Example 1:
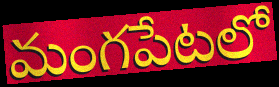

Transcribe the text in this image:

మంగపేటలో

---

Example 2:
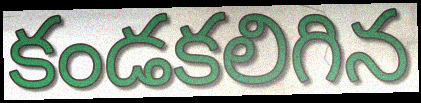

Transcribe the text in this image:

కండకలిగిన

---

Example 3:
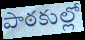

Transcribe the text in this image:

పాఠకుల్లో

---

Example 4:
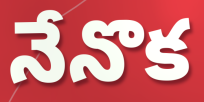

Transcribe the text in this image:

నేనొక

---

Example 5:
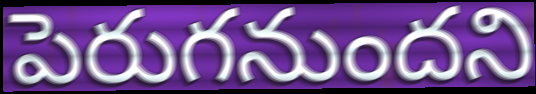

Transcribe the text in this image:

పెరుగనుందని